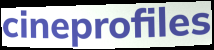
cineprofiles